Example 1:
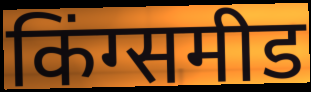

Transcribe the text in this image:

किंग्समीड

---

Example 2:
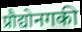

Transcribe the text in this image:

प्रौद्योनगकी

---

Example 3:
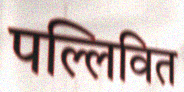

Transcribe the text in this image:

पल्लिवित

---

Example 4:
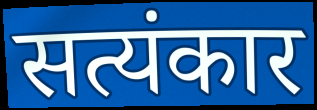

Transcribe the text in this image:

सत्यंकार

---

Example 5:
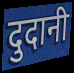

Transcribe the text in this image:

दुदानी